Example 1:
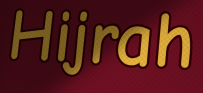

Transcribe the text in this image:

Hijrah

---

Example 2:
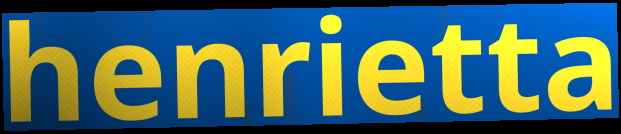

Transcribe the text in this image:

henrietta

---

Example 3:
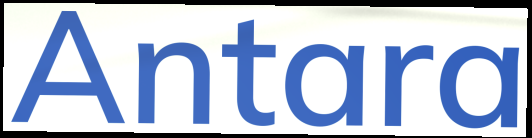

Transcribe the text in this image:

Antara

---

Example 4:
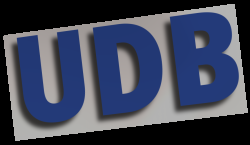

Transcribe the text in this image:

UDB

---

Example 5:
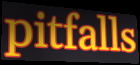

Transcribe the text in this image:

pitfalls